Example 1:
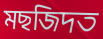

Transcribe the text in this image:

মছজিদত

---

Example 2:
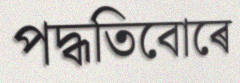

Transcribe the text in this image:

পদ্ধতিবোৰে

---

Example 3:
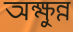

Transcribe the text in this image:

অক্ষুন্ন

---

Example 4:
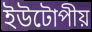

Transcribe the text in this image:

ইউটোপীয়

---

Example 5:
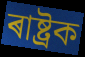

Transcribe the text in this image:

ৰাষ্ট্ৰক